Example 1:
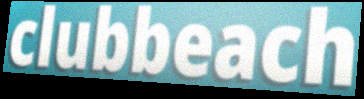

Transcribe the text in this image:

clubbeach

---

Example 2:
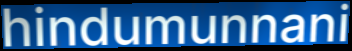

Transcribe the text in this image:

hindumunnani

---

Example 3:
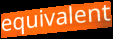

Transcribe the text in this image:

equivalent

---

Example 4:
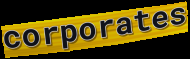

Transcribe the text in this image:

corporates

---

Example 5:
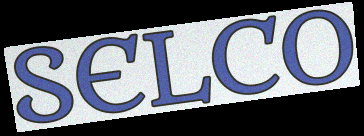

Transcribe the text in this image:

SELCO